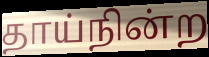
தாய்நின்ற